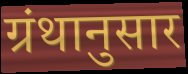
ग्रंथानुसार